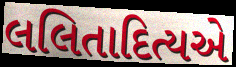
લલિતાદિત્યએ